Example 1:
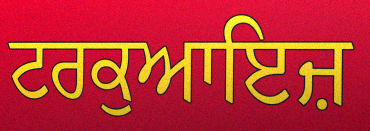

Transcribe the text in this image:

ਟਰਕੁਆਇਜ਼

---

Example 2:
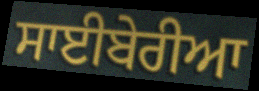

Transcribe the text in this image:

ਸਾਈਬੇਰੀਆ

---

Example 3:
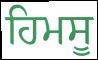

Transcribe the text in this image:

ਹਿਮਸੂ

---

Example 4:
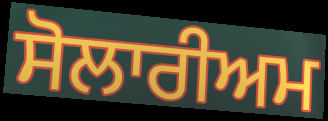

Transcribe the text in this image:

ਸੋਲਾਰੀਅਮ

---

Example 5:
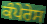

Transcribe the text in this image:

ਕੰਪੇਰੇਸ